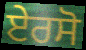
ਏਰਸੋ